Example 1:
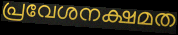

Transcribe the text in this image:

പ്രവേശനക്ഷമത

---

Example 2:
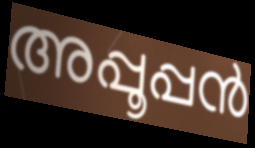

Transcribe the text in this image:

അപ്പൂപ്പൻ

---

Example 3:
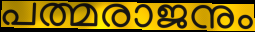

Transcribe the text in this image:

പത്മരാജനും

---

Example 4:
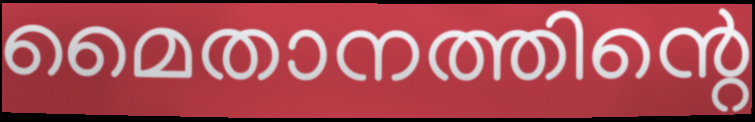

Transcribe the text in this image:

മൈതാനത്തിന്റെ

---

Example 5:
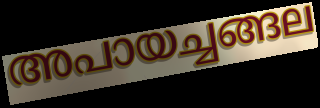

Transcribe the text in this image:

അപായച്ചങ്ങല